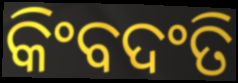
କିଂବଦଂତି